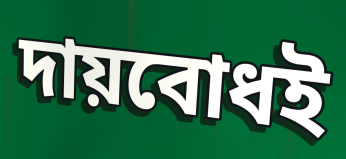
দায়বোধই